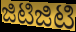
ಜಿಟಿಜಿಟಿ